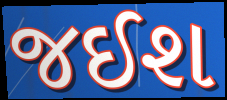
જઈશ